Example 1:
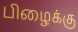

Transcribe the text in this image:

பிழைக்கு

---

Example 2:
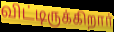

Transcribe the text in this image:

விட்டிருக்கிறார்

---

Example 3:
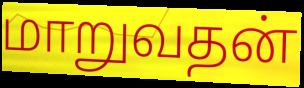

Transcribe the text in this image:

மாறுவதன்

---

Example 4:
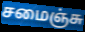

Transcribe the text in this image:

சமைஞ்சு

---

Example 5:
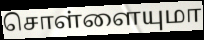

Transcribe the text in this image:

சொள்ளையுமா